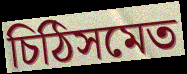
চিঠিসমেত